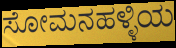
ಸೋಮನಹಳ್ಳಿಯ